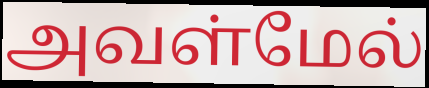
அவள்மேல்